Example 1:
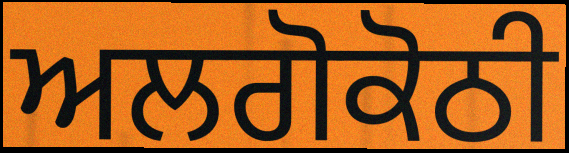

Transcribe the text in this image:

ਅਲਗੋਕੋਠੀ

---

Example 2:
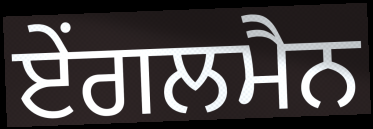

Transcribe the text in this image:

ਏਂਗਲਮੈਨ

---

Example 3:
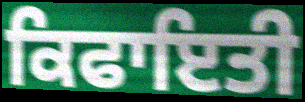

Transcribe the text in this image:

ਕਿਫਾਇਤੀ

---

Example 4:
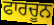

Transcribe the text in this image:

ਫਾਰਚੂਨ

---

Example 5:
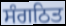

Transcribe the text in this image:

ਸੰਗਠਿਤ